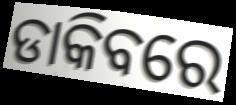
ଡାକିବରେ